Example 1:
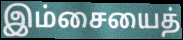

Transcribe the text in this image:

இம்சையைத்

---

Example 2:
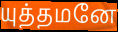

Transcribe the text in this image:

யுத்தமனே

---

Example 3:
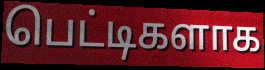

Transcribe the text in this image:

பெட்டிகளாக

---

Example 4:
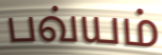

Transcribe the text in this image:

பவ்யம்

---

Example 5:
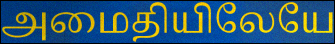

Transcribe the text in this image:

அமைதியிலேயே